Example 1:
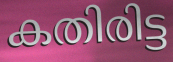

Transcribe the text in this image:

കതിരിട്ട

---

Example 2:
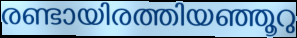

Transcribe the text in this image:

രണ്ടായിരത്തിയഞ്ഞൂറു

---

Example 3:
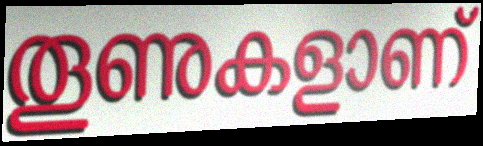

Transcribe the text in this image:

തൂണുകളാണ്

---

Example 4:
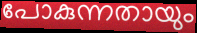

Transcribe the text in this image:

പോകുന്നതായും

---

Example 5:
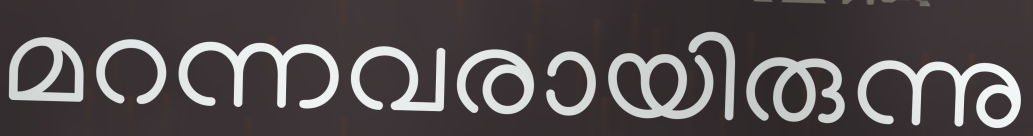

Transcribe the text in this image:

മറന്നവരായിരുന്നു